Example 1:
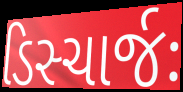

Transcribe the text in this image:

ડિસ્ચાર્જઃ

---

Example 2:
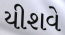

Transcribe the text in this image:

યીશવે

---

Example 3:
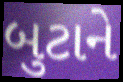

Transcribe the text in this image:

બુટાને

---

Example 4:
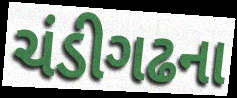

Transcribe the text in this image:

ચંડીગઢના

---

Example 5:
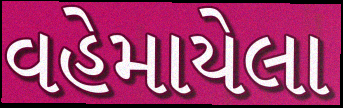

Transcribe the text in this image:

વહેમાયેલા